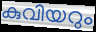
കുവിയറും